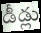
డీడ్లు